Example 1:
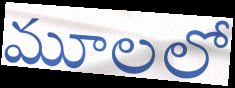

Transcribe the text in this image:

మూలలో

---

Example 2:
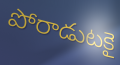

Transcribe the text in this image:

పోరాడుటకై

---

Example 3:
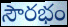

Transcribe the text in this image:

సౌరభం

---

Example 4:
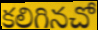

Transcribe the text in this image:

కలిగినచో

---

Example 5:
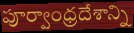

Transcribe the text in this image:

పూర్వాంధ్రదేశాన్ని